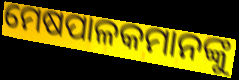
ମେଷପାଳକମାନଙ୍କୁ